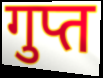
गुप्त